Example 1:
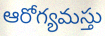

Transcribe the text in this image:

ఆరోగ్యమస్తు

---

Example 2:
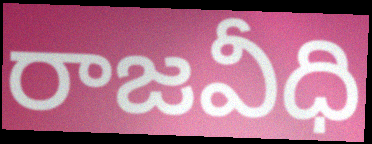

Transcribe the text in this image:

రాజవీధి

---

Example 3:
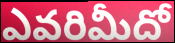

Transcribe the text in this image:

ఎవరిమీదో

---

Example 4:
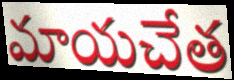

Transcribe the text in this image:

మాయచేత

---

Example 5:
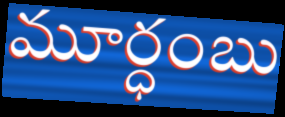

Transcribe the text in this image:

మూర్ధంబు